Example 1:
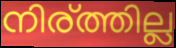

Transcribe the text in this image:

നിര്ത്തില്ല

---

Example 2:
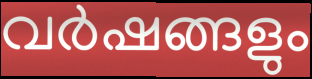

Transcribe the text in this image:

വർഷങ്ങളും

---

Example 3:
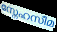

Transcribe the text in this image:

സ്നേഹസീമ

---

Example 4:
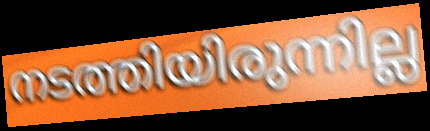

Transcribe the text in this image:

നടത്തിയിരുന്നില്ല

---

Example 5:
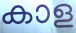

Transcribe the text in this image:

കാള